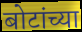
बोटांच्या